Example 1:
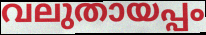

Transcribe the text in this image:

വലുതായപ്പം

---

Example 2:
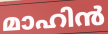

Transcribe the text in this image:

മാഹിൻ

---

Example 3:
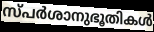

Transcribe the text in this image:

സ്പർശാനുഭൂതികൾ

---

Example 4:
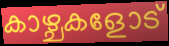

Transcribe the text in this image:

കാഴ്ചകളോട്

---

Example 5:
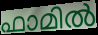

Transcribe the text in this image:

ഫാമിൽ